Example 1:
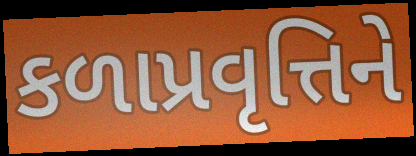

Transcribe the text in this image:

કળાપ્રવૃત્તિને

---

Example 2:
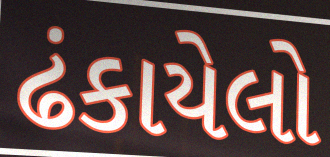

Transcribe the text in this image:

ઢંકાયેલો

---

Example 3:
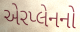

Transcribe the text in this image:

એરપ્લેનનો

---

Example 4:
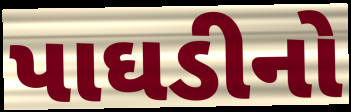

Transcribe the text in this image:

પાઘડીનો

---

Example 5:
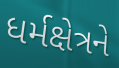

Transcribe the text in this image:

ધર્મક્ષેત્રને